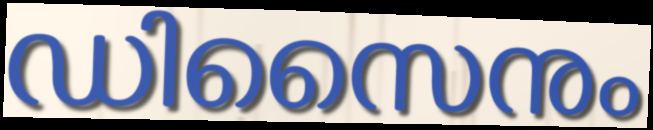
ഡിസൈനും